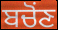
ਬਚੋਂਣ